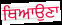
ਥਿਆਉਣਾ